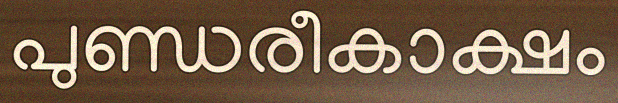
പുണ്ഡരീകാക്ഷം